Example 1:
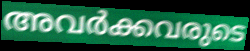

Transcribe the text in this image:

അവർക്കവരുടെ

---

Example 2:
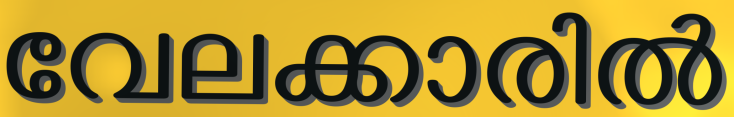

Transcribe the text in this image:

വേലക്കാരിൽ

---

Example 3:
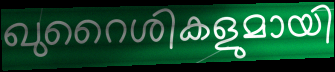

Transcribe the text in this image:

ഖുറൈശികളുമായി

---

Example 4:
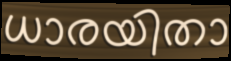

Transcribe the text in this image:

ധാരയിതാ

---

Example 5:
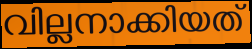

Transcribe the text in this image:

വില്ലനാക്കിയത്